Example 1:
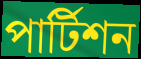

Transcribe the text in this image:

পার্টিশন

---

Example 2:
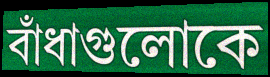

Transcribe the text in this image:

বাঁধাগুলোকে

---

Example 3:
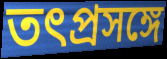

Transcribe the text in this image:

তৎপ্রসঙ্গে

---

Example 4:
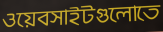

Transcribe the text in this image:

ওয়েবসাইটগুলোতে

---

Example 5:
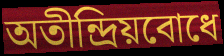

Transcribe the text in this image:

অতীন্দ্রিয়বোধে